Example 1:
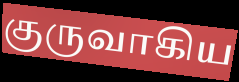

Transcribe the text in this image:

குருவாகிய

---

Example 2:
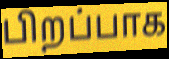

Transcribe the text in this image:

பிறப்பாக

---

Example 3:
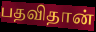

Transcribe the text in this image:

பதவிதான்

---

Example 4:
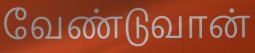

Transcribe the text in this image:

வேண்டுவான்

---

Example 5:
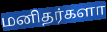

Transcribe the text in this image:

மனிதர்களா